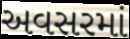
અવસરમાં